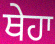
ਥੇਹਾ